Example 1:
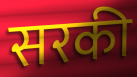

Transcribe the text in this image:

सरकी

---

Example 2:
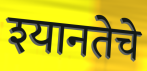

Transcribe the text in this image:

श्यानतेचे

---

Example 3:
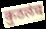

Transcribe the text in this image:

कुठलंच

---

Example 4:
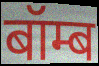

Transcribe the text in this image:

बॉम्ब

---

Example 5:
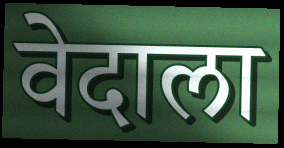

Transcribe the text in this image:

वेदाला